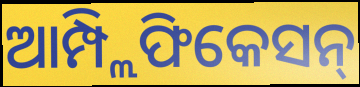
ଆମ୍ପ୍ଲିଫିକେସନ୍